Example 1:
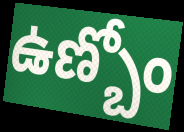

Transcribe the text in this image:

ఉణ్బోం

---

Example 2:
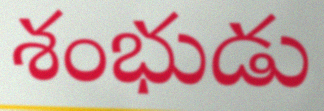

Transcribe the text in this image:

శంభుడు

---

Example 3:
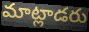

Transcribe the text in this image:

మాట్లాడరు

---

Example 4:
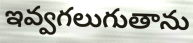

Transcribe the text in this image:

ఇవ్వగలుగుతాను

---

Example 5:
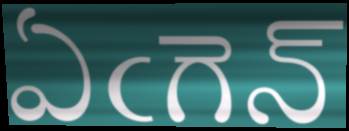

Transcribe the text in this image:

ఏఁగెన్